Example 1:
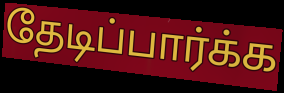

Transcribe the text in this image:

தேடிப்பார்க்க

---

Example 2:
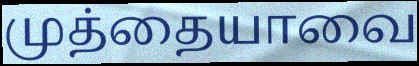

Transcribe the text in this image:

முத்தையாவை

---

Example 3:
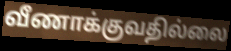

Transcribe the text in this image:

வீணாக்குவதில்லை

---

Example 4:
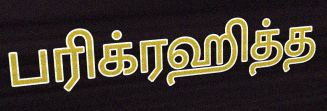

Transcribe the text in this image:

பரிக்ரஹித்த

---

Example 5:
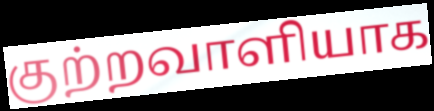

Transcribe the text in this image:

குற்றவாளியாக